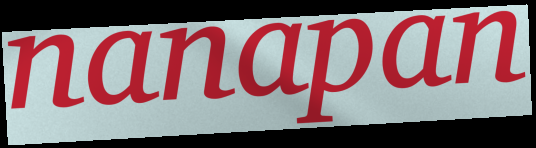
nanapan